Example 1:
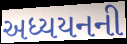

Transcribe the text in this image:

અધ્યયનની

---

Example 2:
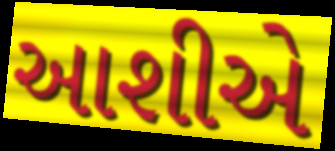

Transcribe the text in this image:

આશીએ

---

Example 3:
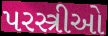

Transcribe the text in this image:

પરસ્ત્રીઓ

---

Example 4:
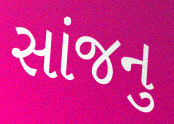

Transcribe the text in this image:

સાંજનુ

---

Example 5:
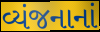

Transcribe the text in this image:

વ્યંજનાનાં